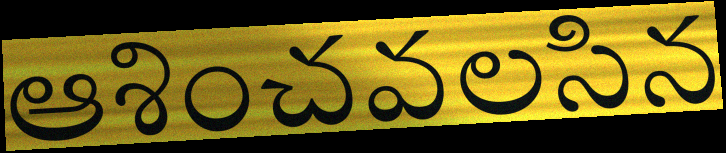
ఆశించవలసిన